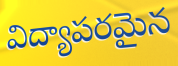
విద్యాపరమైన